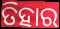
ତିହାର